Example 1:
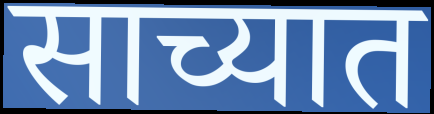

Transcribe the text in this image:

साच्यात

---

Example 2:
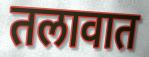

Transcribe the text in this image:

तलावात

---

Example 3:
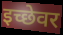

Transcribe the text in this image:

इच्छेवर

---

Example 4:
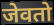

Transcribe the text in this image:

जेवतो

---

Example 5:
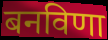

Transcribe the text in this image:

बनविणा